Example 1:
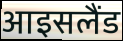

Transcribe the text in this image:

आइसलैंड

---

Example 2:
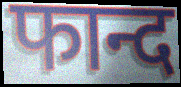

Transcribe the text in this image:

फान्द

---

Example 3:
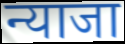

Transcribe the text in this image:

न्याजा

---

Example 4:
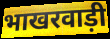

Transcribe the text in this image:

भाखरवाड़ी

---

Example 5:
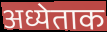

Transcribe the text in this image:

अध्येताक